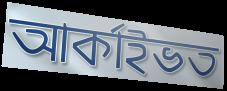
আৰ্কাইভত